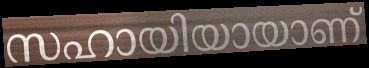
സഹായിയായാണ്